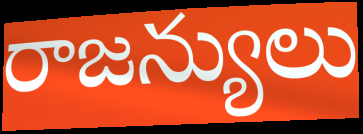
రాజన్యులు